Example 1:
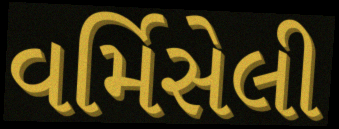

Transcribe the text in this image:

વર્મિસેલી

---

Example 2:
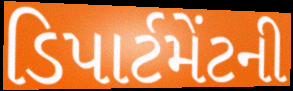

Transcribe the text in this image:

ડિપાર્ટમેંટની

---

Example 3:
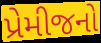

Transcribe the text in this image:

પ્રેમીજનો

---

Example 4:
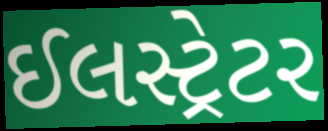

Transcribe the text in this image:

ઈલસ્ટ્રેટર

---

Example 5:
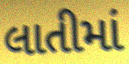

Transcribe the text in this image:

લાતીમાં